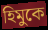
হিমুকে